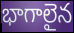
భాగాలైన